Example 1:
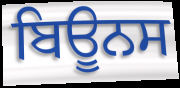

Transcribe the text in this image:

ਬਿਊਨਸ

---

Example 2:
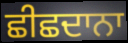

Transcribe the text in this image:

ਛੀਛਦਾਨਾ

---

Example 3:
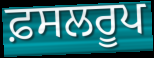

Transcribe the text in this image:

ਫ਼ਸਲਰੂਪ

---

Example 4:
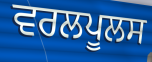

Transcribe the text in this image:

ਵਰਲਪੂਲਸ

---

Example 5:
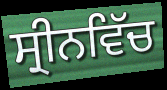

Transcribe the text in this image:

ਸ੍ਰੀਨਵਿੱਚ